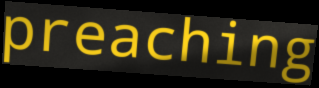
preaching